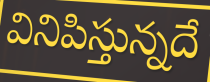
వినిపిస్తున్నదే